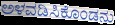
ಅಳವಡಿಸಿಕೊಂಡನು